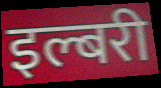
इल्बरी